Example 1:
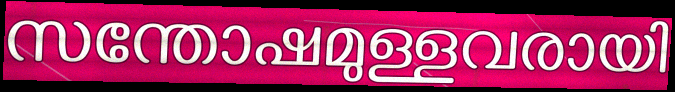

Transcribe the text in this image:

സന്തോഷമുള്ളവരായി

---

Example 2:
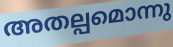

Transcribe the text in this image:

അതല്പമൊന്നു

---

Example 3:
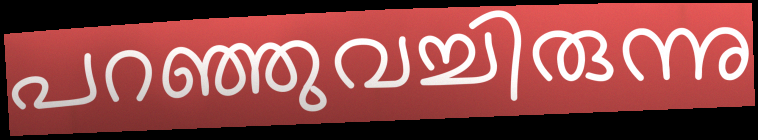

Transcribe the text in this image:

പറഞ്ഞുവച്ചിരുന്നു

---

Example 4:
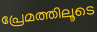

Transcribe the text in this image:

പ്രേമത്തിലൂടെ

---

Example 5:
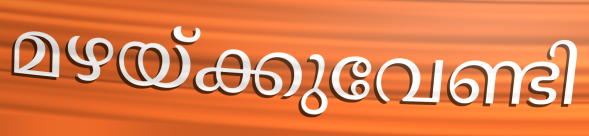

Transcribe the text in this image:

മഴയ്ക്കുവേണ്ടി